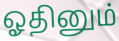
ஓதினும்